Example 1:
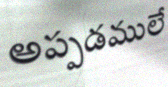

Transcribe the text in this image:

అప్పడములే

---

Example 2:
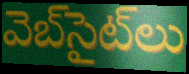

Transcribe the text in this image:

వెబ్‌సైట్‌లు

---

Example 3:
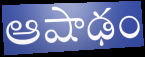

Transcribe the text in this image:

ఆషాఢం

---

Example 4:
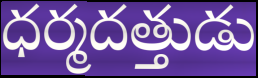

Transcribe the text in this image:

ధర్మదత్తుడు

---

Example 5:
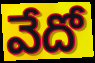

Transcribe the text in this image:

వేదో